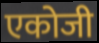
एकोजी